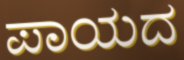
ಪಾಯದ